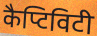
कैप्टिविटी